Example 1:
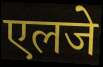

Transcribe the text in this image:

एलजे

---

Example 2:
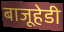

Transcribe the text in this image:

बाजूहेडी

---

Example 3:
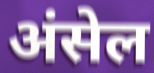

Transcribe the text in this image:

अंसेल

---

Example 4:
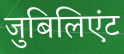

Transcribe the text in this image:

जुबिलिएंट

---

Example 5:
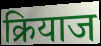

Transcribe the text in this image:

क्रियाज